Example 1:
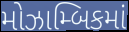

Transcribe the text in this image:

મોઝામ્બિકમાં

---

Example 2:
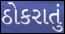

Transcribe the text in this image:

ઠોકરાતું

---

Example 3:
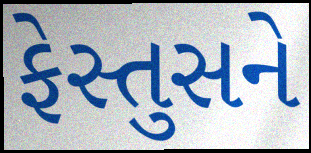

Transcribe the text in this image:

ફેસ્તુસને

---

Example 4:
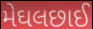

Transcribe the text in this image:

મેઘલછાઈ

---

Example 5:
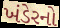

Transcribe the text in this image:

ખંડેરનો